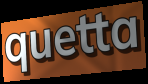
quetta